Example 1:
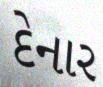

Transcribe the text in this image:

દેનાર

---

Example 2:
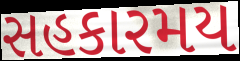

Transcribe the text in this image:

સહકારમય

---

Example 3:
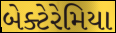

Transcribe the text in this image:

બેક્ટેરેમિયા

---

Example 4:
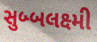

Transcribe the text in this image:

સુબ્બલક્ષ્મી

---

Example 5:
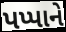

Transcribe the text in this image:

પપ્પાને